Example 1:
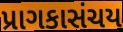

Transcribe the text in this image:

પ્રાગકાસંચય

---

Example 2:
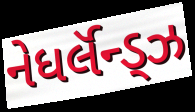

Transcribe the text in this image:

નેધર્લૅન્ડ્ઝ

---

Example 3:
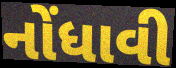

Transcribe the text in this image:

નોંધાવી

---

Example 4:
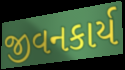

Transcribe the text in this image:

જીવનકાર્ય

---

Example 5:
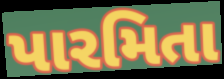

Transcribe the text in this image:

પારમિતા